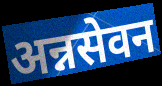
अन्नसेवन